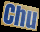
Chu